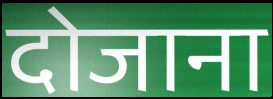
दोजाना